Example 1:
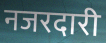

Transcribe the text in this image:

नजरदारी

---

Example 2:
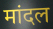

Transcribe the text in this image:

मांदल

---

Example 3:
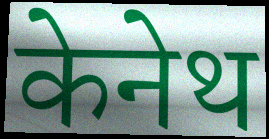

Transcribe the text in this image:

केनेथ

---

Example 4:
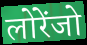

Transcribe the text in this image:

लोरेंजो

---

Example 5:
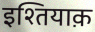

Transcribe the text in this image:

इश्तियाक़